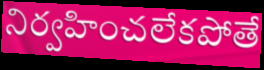
నిర్వహించలేకపోతే